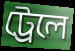
ট্রেলে